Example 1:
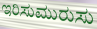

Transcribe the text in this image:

ಇರಿಸುಮುರುಸು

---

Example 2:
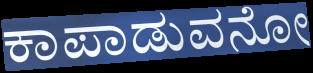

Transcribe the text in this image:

ಕಾಪಾಡುವನೋ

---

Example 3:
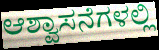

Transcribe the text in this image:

ಆಶ್ವಾಸನೆಗಳಲ್ಲಿ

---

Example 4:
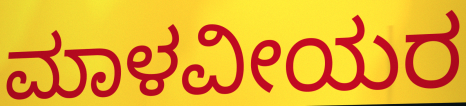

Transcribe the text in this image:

ಮಾಳವೀಯರ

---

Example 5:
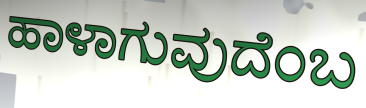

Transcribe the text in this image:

ಹಾಳಾಗುವುದೆಂಬ